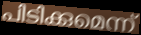
പിടിക്കുമെന്ന്